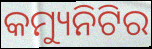
କମ୍ୟୁନିଟିର